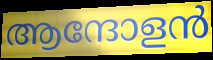
ആന്ദോളൻ